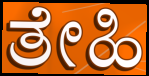
ತೇಹಿ